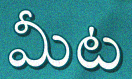
మీట